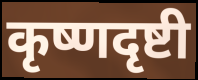
कृष्णदृष्टी